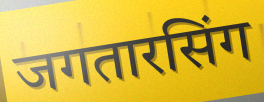
जगतारसिंग